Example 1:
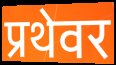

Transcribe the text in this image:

प्रथेवर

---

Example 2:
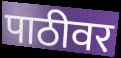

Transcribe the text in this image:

पाठीवर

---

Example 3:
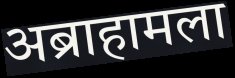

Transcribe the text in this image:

अब्राहामला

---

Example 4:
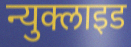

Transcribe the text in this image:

न्युक्लाइड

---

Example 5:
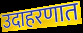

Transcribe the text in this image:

उदाहरणात